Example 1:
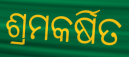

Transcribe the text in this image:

ଶ୍ରମକର୍ଷିତ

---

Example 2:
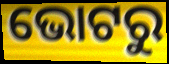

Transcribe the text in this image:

ଭୋଟରୁ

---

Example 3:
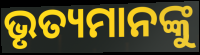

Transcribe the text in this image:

ଭୃତ୍ୟମାନଙ୍କୁ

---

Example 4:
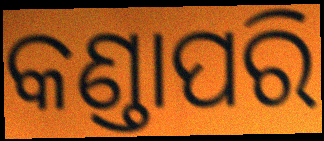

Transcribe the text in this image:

କଣ୍ଡାପରି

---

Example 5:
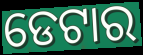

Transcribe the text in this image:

ଡେଟାର